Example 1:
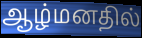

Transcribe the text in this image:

ஆழ்மனதில்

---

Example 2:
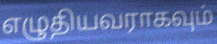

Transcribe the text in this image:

எழுதியவராகவும்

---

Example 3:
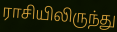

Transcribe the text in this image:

ராசியிலிருந்து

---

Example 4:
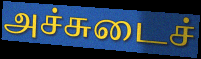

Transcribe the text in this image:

அச்சுடைச்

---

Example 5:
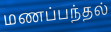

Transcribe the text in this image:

மணப்பந்தல்